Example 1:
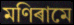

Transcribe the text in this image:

মণিৰামে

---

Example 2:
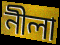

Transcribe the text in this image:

নীলা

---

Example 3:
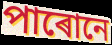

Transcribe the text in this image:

পাৰোনে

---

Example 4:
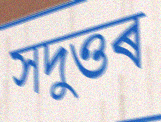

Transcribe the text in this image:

সদুত্তৰ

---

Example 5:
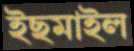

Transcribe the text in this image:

ইছমাইল